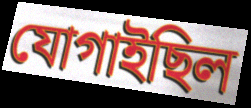
যোগাইছিল